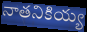
నాతనికియ్య